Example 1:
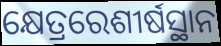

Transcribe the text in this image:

କ୍ଷେତ୍ରରେଶୀର୍ଷସ୍ଥାନ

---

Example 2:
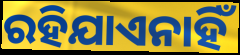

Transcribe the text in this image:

ରହିଯାଏନାହିଁ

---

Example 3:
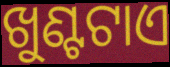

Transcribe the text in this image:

ଖୁଣ୍ଟଟାଏ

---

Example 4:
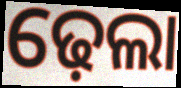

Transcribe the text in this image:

ଢ଼େଲା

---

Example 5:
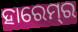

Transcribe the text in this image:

ହାରେମ୍‍ର